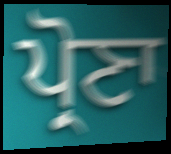
ਪ੍ਰੋਣਾ